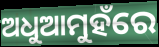
ଅଧୁଆମୁହଁରେ